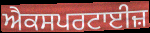
ਐਕਸਪਰਟਾਈਜ਼